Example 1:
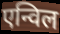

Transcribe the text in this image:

एन्विल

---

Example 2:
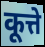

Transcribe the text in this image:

कूत्ते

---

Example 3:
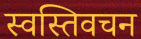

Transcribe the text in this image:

स्वस्तिवचन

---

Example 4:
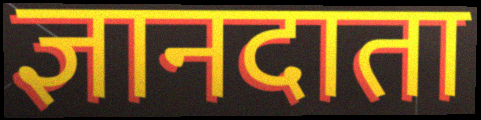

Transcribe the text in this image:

ज्ञानदाता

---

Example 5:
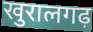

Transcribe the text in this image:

खुरालगढ़